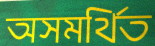
অসমর্থিত